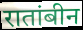
रातांबीन